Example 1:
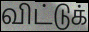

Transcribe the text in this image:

விட்டுக்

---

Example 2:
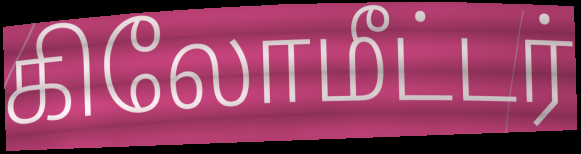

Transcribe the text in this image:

கிலோமீட்டர்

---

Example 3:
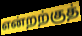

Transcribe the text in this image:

என்றற்குத்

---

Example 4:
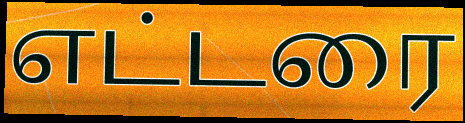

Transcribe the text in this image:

எட்டரை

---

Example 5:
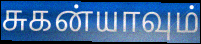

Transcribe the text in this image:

சுகன்யாவும்